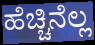
ಹೆಚ್ಚಿನೆಲ್ಲ